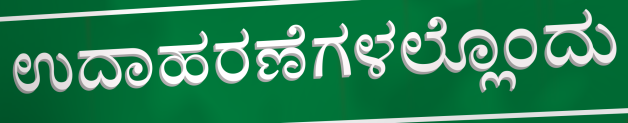
ಉದಾಹರಣೆಗಳಲ್ಲೊಂದು